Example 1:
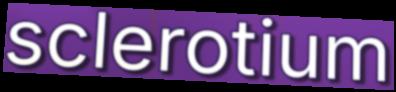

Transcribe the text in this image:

sclerotium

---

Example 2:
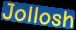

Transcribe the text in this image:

Jollosh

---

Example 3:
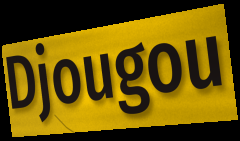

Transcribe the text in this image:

Djougou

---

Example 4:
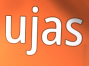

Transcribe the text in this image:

ujas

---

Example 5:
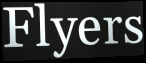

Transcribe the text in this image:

Flyers